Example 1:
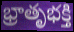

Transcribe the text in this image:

భ్రాతృభక్తి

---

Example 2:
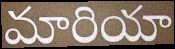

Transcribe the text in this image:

మారియా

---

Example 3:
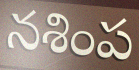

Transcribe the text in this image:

నశింప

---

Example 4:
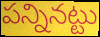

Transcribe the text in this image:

పన్నినట్టు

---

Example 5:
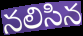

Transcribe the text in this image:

నలిసిన